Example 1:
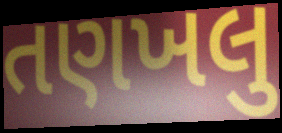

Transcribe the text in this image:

તણખલુ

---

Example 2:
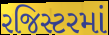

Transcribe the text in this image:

રજિસ્ટરમાં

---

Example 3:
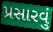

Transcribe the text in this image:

પ્રસારવું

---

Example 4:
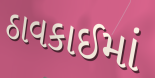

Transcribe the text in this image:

ઠાવકાઈમાં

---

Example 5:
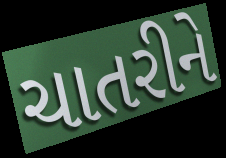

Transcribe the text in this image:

ચાતરીને